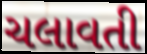
ચલાવતી